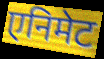
एनिमेट